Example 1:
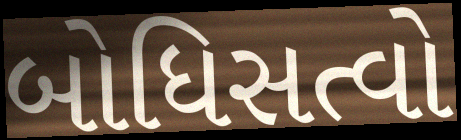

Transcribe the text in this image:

બોધિસત્વો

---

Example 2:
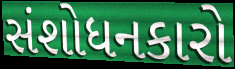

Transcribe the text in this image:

સંશોધનકારો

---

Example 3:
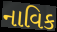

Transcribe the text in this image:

નાવિક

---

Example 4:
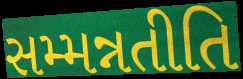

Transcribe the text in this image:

સમ્મન્નતીતિ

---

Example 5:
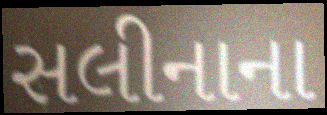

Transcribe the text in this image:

સલીનાના